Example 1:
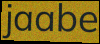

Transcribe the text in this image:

jaabe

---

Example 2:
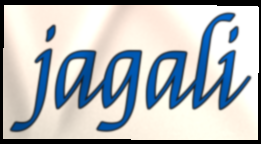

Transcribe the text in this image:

jagali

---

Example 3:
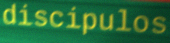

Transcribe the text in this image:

discipulos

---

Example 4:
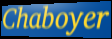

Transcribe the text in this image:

Chaboyer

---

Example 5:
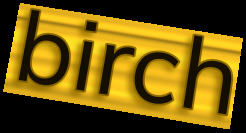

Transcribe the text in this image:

birch